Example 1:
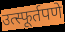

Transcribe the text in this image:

उत्स्फूर्तपणे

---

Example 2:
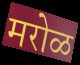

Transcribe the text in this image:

मरोळ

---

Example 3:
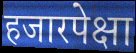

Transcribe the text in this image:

हजारपेक्षा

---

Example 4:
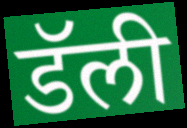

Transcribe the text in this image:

डॅली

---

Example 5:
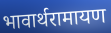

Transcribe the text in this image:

भावार्थरामायण